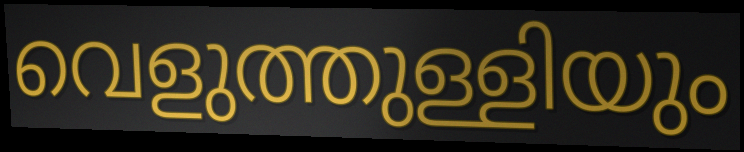
വെളുത്തുള്ളിയും